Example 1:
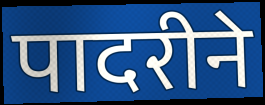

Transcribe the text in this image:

पादरीने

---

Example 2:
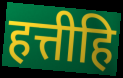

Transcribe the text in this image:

हत्तीहि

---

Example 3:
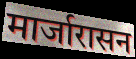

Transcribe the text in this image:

मार्जारासन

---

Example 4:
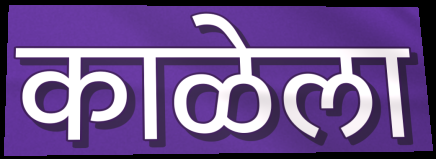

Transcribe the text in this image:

काळेला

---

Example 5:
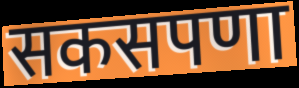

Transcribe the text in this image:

सकसपणा